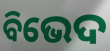
ବିଭେଦ